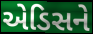
એડિસને